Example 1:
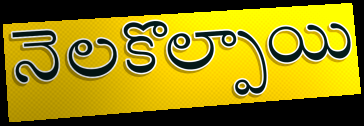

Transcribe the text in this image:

నెలకొల్పాయి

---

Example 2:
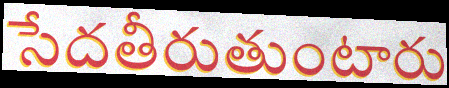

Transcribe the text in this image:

సేదతీరుతుంటారు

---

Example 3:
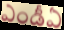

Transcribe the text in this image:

ఎండీఏ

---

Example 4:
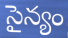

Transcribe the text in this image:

సైన్యం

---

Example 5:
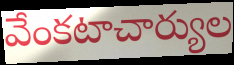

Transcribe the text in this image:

వేంకటాచార్యుల